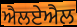
ਐਲਏਐਲ